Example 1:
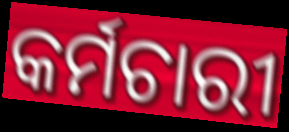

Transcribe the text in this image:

କର୍ମଚାରୀ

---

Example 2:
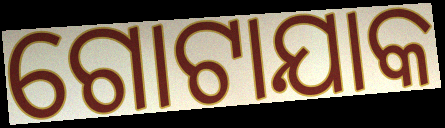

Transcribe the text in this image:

ଗୋଟାଯାକ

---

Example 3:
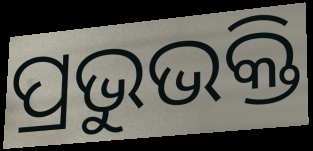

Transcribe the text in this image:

ପ୍ରଭୁଭକ୍ତି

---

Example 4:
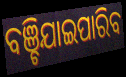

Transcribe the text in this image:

ବଞ୍ଚିଯାଇପାରିବ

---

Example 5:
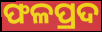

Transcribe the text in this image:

ଫଳପ୍ରଦ